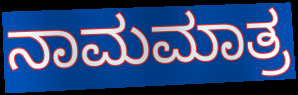
ನಾಮಮಾತ್ರ